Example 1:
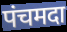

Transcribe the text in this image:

पंचमदा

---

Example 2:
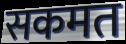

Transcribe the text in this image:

सकमत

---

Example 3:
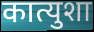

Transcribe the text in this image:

कात्युशा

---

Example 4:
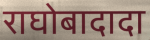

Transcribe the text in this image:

राघोबादादा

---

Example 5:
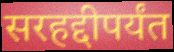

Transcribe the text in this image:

सरहद्दीपर्यंत